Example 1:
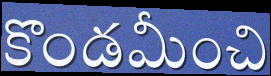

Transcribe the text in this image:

కొండమీంచి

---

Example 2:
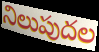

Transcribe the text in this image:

నిలుపుదల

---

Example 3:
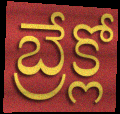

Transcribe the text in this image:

బ్రేక్లో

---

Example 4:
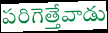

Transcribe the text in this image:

పరిగెత్తేవాడు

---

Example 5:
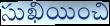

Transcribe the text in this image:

సుఖియించి